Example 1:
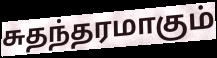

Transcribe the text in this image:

சுதந்தரமாகும்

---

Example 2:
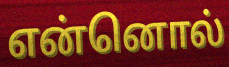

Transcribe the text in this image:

என்னொல்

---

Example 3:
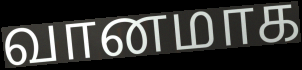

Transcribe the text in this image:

வானமாக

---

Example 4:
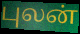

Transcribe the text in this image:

புலன்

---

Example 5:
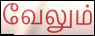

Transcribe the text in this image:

வேலும்